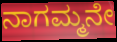
ನಾಗಮ್ಮನೇ